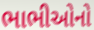
ભાભીઓનો